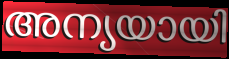
അന്യയായി